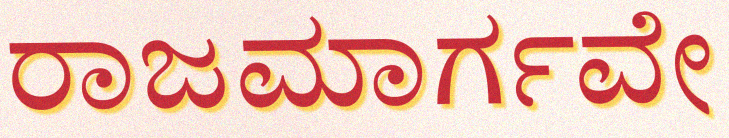
ರಾಜಮಾರ್ಗವೇ